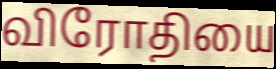
விரோதியை